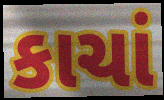
કાચાં